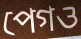
পেগও